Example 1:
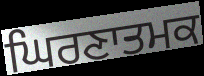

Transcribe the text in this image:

ਘਿਰਣਾਤਮਕ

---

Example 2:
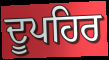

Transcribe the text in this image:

ਦੂਪਹਿਰ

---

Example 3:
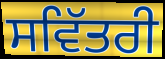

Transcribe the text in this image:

ਸਵਿੱਤਰੀ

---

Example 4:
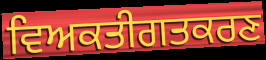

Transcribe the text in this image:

ਵਿਅਕਤੀਗਤਕਰਣ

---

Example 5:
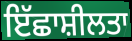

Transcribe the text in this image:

ਇੱਛਾਸ਼ੀਲਤਾ